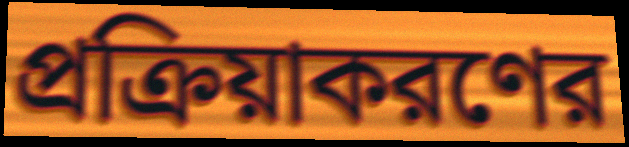
প্রক্রিয়াকরণের